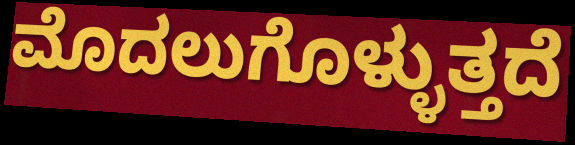
ಮೊದಲುಗೊಳ್ಳುತ್ತದೆ